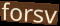
forsv